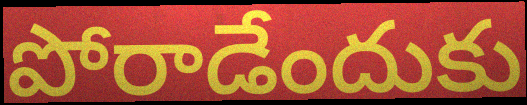
పోరాడేందుకు